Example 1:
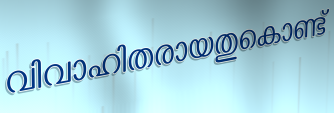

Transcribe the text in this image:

വിവാഹിതരായതുകൊണ്ട്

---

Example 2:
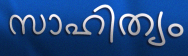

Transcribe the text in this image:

സാഹിത്യം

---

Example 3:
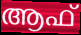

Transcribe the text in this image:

ആഫ്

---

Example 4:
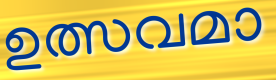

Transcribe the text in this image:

ഉത്സവമാ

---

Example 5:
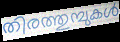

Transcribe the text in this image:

തിരത്തുമ്പുകൾ